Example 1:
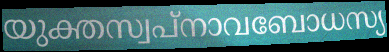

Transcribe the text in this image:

യുക്തസ്വപ്നാവബോധസ്യ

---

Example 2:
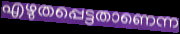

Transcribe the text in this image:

എഴുതപ്പെട്ടതാണെന്ന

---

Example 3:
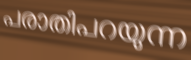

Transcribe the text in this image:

പരാതിപറയുന്ന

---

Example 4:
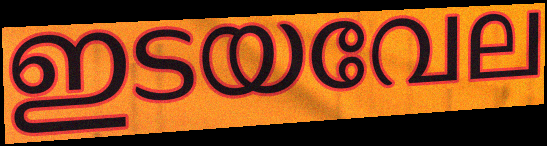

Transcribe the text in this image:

ഇടയവേല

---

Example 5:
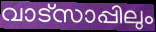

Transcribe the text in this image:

വാട്സാപ്പിലും